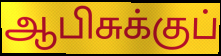
ஆபிசுக்குப்